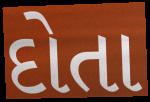
દોતા